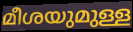
മീശയുമുള്ള